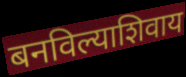
बनविल्याशिवाय